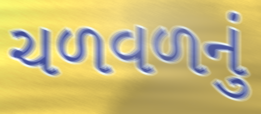
ચળવળનું